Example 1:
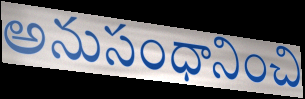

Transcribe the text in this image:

అనుసంధానించి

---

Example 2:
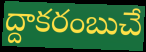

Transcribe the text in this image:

ద్దాకరంబుచే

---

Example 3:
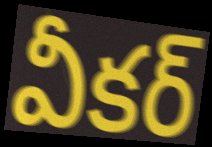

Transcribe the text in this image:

వీకర్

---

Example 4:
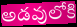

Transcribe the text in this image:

అడవులోకి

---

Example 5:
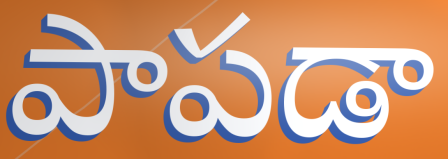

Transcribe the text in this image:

పాపడా